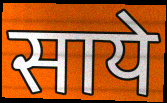
साये